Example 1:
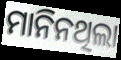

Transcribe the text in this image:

ମାନିନଥିଲା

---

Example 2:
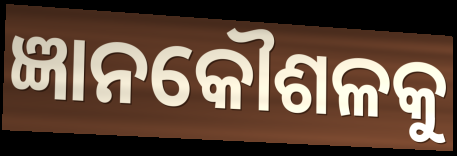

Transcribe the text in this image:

ଜ୍ଞାନକୌଶଳକୁ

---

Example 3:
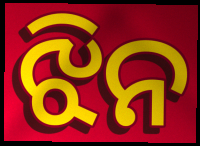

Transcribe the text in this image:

ଝିନ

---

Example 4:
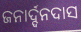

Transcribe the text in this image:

ଜନାର୍ଦ୍ଦନଦାସ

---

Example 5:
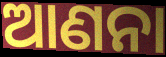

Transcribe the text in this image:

ଆଣନା